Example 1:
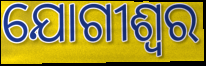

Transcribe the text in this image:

ଯୋଗୀଶ୍ୱର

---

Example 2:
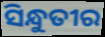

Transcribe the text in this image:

ସିନ୍ଧୁତୀର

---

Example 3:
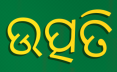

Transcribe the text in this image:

ଉତ୍ପତି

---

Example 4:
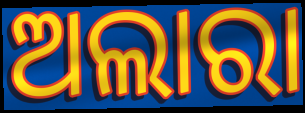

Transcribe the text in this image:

ଅଲାରା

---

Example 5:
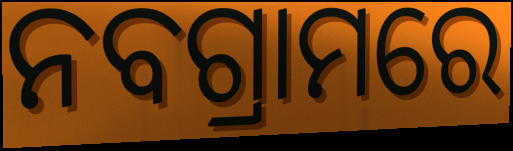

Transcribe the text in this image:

ନବଗ୍ରାମରେ